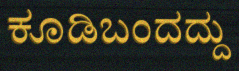
ಕೂಡಿಬಂದದ್ದು